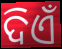
ଦିଏଁ